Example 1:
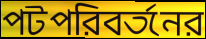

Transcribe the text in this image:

পটপরিবর্তনের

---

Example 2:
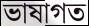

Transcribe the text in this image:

ভাষাগত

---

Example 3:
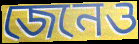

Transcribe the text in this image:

জেনেও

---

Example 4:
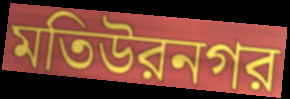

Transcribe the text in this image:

মতিউরনগর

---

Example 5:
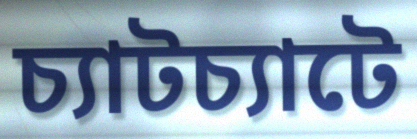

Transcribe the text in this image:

চ্যাটচ্যাটে